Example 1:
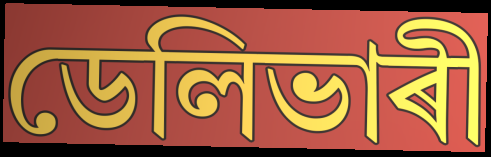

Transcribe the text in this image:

ডেলিভাৰী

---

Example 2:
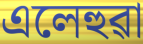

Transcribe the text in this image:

এলেহুৱা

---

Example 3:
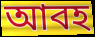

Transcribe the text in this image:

আবহ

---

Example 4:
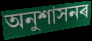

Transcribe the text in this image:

অনুশাসনৰ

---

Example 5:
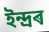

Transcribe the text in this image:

ইন্দ্ৰৰ